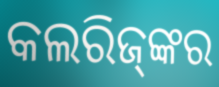
କଲରିଜ୍‌ଙ୍କର